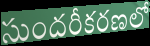
సుందరీకరణలో